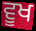
ਵੂਖ